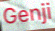
Genji